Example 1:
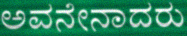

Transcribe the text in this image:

ಅವನೇನಾದರು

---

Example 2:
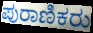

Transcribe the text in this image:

ಪುರಾಣಿಕರು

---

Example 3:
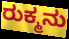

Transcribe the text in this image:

ರುಕ್ಮನು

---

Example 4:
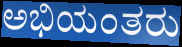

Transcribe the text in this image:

ಅಭಿಯಂತರು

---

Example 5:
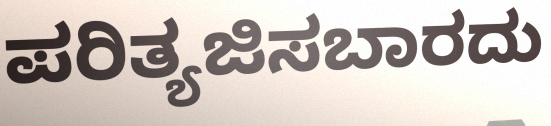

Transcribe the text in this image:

ಪರಿತ್ಯಜಿಸಬಾರದು